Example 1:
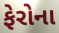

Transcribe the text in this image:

ફેરોના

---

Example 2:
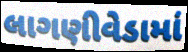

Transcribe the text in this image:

લાગણીવેડામાં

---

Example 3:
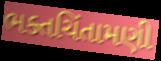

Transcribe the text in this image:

ભક્તચિંતામણી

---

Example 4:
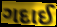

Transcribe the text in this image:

ગદાઈ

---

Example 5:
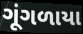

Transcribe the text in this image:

ગૂંગળાયા